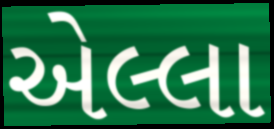
એલ્લા